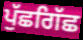
ਪੁੱਛਗਿੱਛ